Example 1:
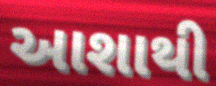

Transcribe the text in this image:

આશાથી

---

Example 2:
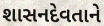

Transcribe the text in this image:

શાસનદેવતાને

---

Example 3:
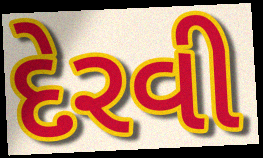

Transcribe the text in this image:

દેરવી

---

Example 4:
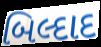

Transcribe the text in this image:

બિલ્દાદ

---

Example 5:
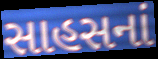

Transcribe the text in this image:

સાહસનાં